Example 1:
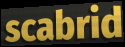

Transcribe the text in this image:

scabrid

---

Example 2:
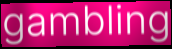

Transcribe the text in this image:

gambling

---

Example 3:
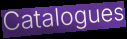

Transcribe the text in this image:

Catalogues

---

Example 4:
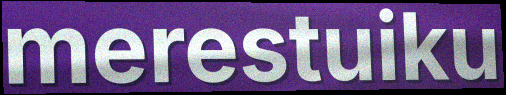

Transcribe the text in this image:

merestuiku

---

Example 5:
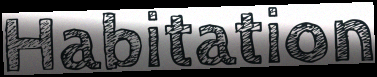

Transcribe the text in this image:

Habitation